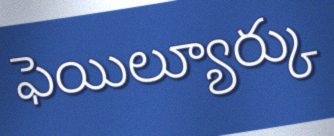
ఫెయిల్యూర్కు